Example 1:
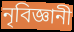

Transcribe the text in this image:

নৃবিজ্ঞানী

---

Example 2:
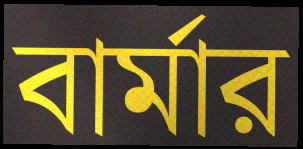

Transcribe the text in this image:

বার্মার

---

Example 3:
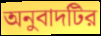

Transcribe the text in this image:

অনুবাদটির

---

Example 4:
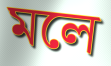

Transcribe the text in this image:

মলে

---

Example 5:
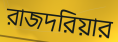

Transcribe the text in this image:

রাজদরিয়ার